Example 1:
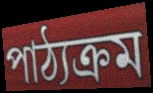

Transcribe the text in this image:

পাঠ্য়ক্ৰম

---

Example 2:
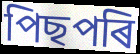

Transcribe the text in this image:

পিছপৰি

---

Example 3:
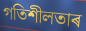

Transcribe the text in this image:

গতিশীলতাৰ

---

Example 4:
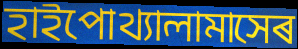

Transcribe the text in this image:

হাইপোথ্যালামাসেৰ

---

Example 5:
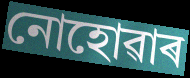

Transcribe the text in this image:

নোহোৱাৰ